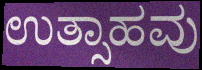
ಉತ್ಸಾಹವು